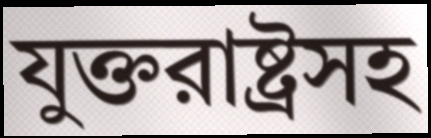
যুক্তরাষ্ট্রসহ